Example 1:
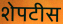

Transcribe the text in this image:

शेपटीस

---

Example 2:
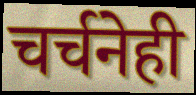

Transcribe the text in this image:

चर्चनेही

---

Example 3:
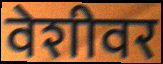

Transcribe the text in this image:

वेशीवर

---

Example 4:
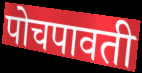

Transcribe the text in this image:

पोचपावती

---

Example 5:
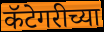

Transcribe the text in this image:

कॅटेगरीच्या